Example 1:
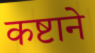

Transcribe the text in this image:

कष्टाने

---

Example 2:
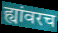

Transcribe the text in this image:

ह्यांवरच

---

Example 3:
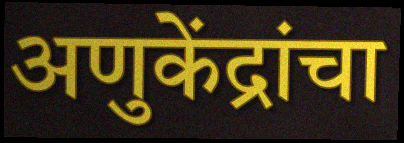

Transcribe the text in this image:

अणुकेंद्रांचा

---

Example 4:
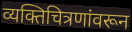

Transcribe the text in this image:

व्यक्तिचित्रणांवरून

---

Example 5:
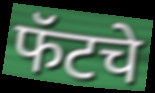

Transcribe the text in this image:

फॅटचे